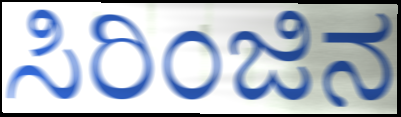
ಸಿರಿಂಜಿನ